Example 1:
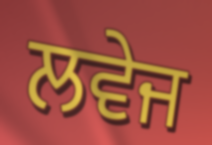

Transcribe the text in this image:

ਲਵੇਜ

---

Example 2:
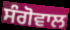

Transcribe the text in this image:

ਸੰਗੋਵਾਲ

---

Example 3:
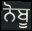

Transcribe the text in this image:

ਨੋਬੂ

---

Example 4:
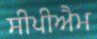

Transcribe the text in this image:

ਸੀਪੀਐਮ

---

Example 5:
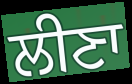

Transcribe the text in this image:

ਲੀਣਾ